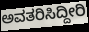
ಅವತರಿಸಿದ್ದೀರಿ